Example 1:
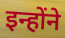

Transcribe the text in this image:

इन्होंने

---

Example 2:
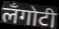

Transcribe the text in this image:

लँगोटी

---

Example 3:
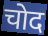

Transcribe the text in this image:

चोद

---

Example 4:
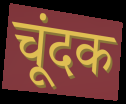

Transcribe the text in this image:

चूंदक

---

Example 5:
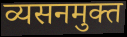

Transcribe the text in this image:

व्यसनमुक्त